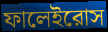
ফালেইরোস